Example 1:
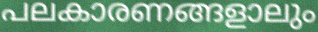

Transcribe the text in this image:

പലകാരണങ്ങളാലും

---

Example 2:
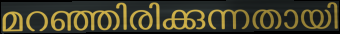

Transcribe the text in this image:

മറഞ്ഞിരിക്കുന്നതായി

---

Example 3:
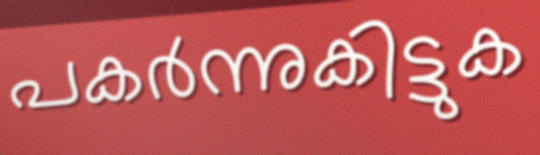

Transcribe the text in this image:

പകർന്നുകിട്ടുക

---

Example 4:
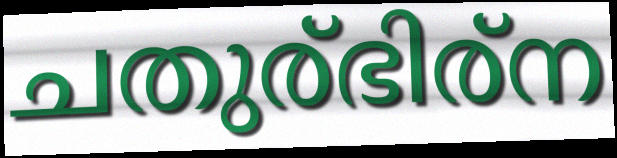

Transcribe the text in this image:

ചതുര്ഭിര്ന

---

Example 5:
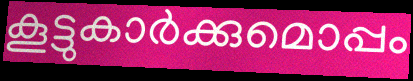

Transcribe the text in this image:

കൂട്ടുകാർക്കുമൊപ്പം